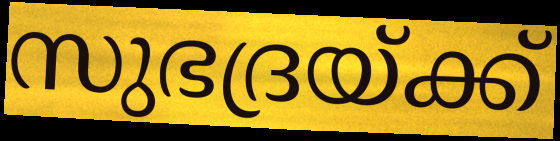
സുഭദ്രയ്ക്ക്